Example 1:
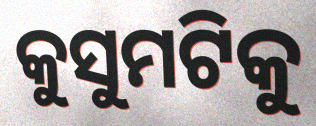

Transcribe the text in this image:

କୁସୁମଟିକୁ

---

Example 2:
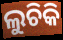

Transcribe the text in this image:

ଲୁଚିକି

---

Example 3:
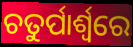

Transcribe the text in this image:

ଚତୁର୍ପାର୍ଶ୍ୱରେ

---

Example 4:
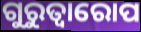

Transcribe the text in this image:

ଗୁରୁତ୍ବାରୋପ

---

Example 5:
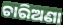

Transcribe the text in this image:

ଚାରିଅଣା